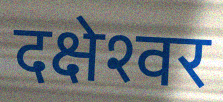
दक्षेश्वर